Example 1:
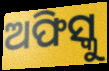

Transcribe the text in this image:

ଅଫିସ୍କୁ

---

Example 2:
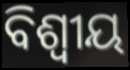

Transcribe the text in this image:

ବିଶ୍ଵୀୟ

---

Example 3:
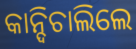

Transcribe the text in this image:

କାନ୍ଦିଚାଲିଲେ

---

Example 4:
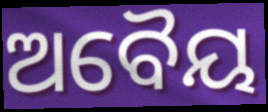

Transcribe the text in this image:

ଅବୈୟ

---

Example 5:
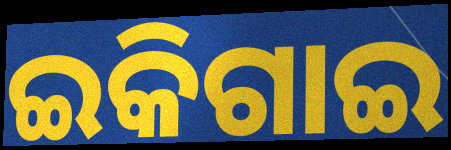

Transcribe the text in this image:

ଇକିଗାଇ